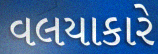
વલયાકારે